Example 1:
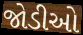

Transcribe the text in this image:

જોડીઓ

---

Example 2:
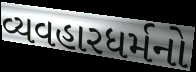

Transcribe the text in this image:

વ્યવહારધર્મનો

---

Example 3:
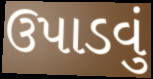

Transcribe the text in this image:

ઉપાડવું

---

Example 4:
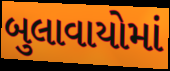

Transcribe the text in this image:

બુલાવાયોમાં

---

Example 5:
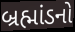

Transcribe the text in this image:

બ્રહ્માંડનો